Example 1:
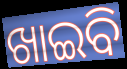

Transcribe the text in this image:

ଖାଇବି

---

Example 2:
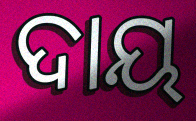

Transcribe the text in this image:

ଦାୟ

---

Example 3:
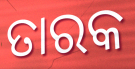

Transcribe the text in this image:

ତାରକ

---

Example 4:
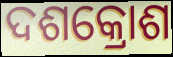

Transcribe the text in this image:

ଦଶକ୍ରୋଶ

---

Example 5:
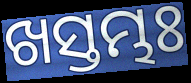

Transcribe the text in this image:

ଖସ୍ତମ୍ଭଃ